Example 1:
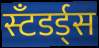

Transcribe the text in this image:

स्टँडर्ड्स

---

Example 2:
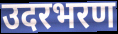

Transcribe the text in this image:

उदरभरण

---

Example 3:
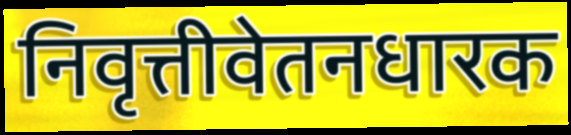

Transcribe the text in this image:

निवृत्तीवेतनधारक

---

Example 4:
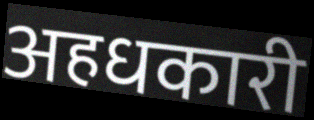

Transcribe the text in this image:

अहधकारी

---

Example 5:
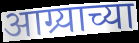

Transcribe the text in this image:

आग्र्याच्या